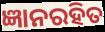
ଜ୍ଞାନରହିତ